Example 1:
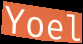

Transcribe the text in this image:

Yoel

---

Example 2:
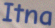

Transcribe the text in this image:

Itna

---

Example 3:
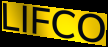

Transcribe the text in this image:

LIFCO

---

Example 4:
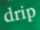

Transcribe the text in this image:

drip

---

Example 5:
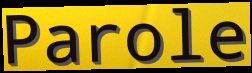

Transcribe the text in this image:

Parole